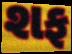
શફ